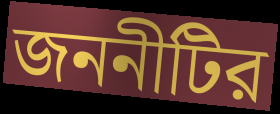
জননীটির